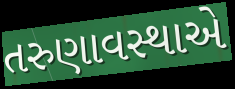
તરુણાવસ્થાએ